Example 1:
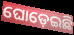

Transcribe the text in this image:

ଘୋଡ଼େଇଛି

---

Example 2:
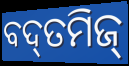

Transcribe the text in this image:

ବଦ୍‌ତମିଜ୍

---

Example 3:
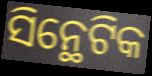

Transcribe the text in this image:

ସିନ୍ଥେଟିକ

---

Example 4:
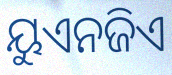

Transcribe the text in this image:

ୟୁଏନଜିଏ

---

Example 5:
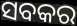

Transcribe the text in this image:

ସବକର